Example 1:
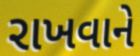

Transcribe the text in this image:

રાખવાને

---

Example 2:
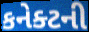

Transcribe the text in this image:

કનેક્ટની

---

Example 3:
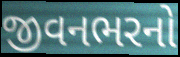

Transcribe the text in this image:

જીવનભરનો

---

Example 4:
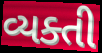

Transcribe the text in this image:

વ્યક્તી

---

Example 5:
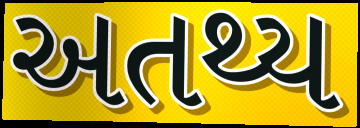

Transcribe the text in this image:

અતથ્ય